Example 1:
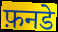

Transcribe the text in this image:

फ़नडे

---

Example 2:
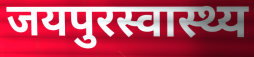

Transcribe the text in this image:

जयपुरस्वास्थ्य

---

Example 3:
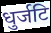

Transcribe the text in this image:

धुर्जटि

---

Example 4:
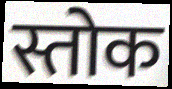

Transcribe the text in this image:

स्तोक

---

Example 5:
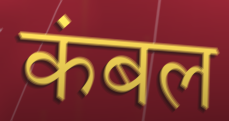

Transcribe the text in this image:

कंबल